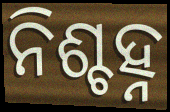
ନିଶ୍ଚହ୍ନ